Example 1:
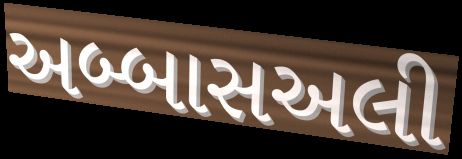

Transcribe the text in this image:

અબ્બાસઅલી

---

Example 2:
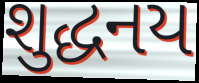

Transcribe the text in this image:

શુદ્ધનય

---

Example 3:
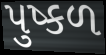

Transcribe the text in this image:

પુષ્કળ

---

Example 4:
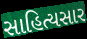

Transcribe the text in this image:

સાહિત્યસાર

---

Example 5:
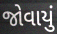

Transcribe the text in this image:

જોવાયું